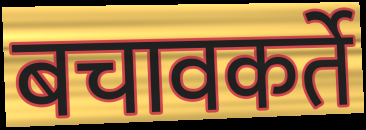
बचावकर्ते